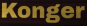
Konger